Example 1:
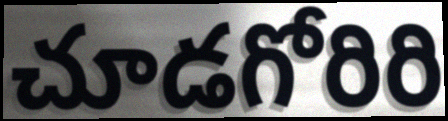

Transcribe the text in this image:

చూడగోరిరి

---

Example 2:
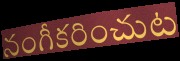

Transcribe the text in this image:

నంగీకరించుట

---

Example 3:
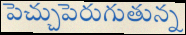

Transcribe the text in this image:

పెచ్చుపెరుగుతున్న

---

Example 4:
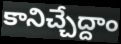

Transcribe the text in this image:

కానిచ్చేద్దాం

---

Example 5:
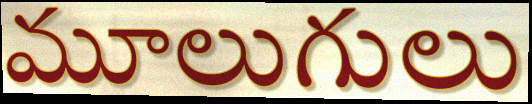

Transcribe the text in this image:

మూలుగులు